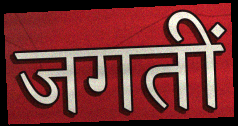
जगतीं